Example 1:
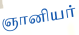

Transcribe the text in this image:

ஞானியர்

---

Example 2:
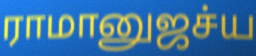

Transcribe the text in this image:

ராமானுஜச்ய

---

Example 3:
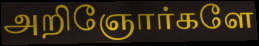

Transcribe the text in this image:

அறிஞோர்களே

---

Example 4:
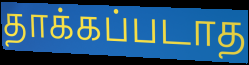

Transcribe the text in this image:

தாக்கப்படாத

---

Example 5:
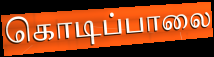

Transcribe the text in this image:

கொடிப்பாலை